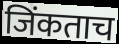
जिंकताच